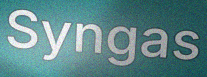
Syngas